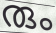
രും